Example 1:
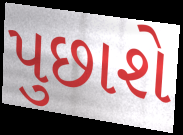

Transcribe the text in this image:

પુછાશે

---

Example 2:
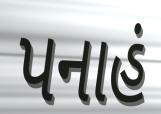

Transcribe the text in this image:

પનાહં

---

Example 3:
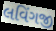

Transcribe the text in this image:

લવિંગજી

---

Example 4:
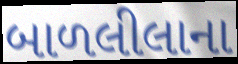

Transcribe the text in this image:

બાળલીલાના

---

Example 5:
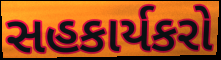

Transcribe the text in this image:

સહકાર્યકરો